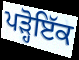
ਪੜ੍ਹੋਇੱਕ